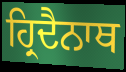
ਹ੍ਰਿਦੈਨਾਥ